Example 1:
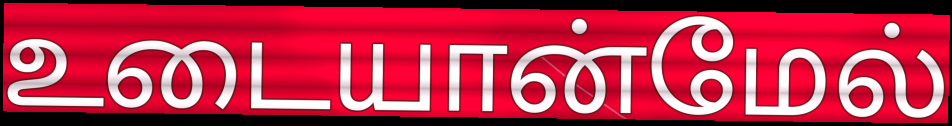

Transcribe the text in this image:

உடையான்மேல்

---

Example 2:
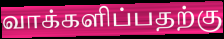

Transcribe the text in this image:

வாக்களிப்பதற்கு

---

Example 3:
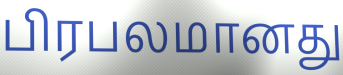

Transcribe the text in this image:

பிரபலமானது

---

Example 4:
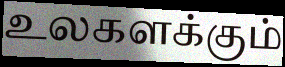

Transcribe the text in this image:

உலகளக்கும்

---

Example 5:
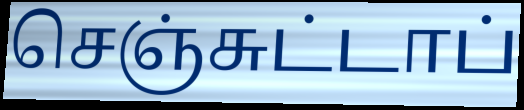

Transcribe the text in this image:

செஞ்சுட்டாப்